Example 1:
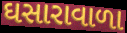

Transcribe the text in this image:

ઘસારાવાળા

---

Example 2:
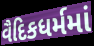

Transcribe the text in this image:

વૈદિકધર્મમાં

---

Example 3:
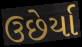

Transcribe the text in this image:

ઉછેર્યા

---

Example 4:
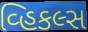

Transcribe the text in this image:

વ્હિકલ્સ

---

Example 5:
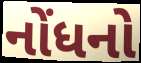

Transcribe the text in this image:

નોંધનો